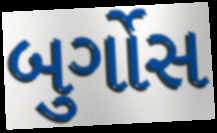
બુર્ગોસ